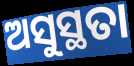
ଅସୁସ୍ଥତା